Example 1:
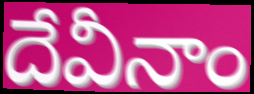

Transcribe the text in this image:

దేవీనాం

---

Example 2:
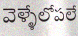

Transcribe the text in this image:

వెళ్ళేలోపలే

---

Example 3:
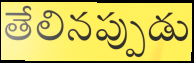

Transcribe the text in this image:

తేలినప్పుడు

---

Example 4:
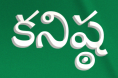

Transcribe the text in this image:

కనిష్ఠ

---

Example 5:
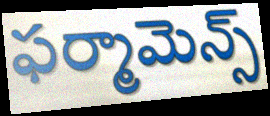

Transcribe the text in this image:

ఫర్మామెన్స్